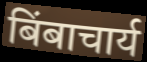
बिंबाचार्य